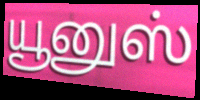
யூனுஸ்